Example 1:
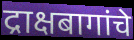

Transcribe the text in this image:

द्राक्षबागांचे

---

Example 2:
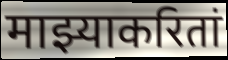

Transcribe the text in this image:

माझ्याकरितां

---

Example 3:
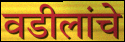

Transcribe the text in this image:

वडीलांचे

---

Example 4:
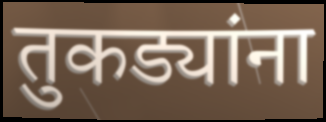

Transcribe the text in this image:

तुकड्यांना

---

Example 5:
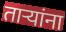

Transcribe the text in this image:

तार्‍यांना